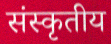
संस्कृतीय